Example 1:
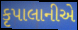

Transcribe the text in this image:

કૃપાલાનીએ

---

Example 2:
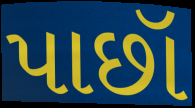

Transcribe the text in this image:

પાછૉ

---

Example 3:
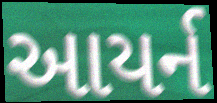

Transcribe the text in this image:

આયર્ન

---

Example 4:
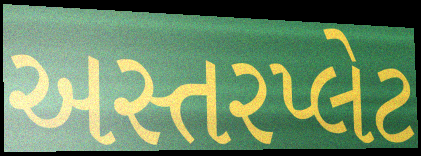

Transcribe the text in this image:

અસ્તરપ્લેટ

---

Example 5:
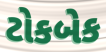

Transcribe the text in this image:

ટોકબેક